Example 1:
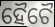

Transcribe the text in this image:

ହୈଚୈ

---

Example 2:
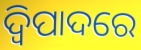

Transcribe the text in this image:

ଦ୍ୱିପାଦରେ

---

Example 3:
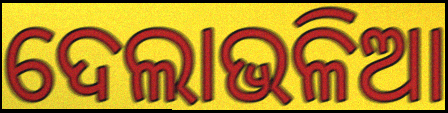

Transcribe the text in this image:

ଦେଲାଭଳିଆ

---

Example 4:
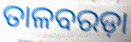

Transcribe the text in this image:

ତାଳବରଡ଼ା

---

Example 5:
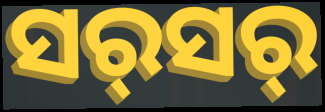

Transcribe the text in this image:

ସର୍‍ସର୍